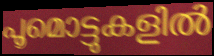
പൂമൊട്ടുകളിൽ